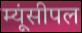
म्यूंसीपल